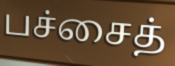
பச்சைத்